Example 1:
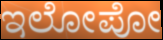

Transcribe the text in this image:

ಇಲೋಪೋ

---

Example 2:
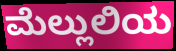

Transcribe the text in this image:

ಮೆಲ್ಲುಲಿಯ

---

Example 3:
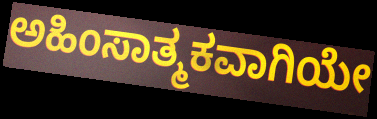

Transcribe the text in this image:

ಅಹಿಂಸಾತ್ಮಕವಾಗಿಯೇ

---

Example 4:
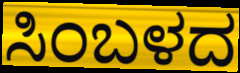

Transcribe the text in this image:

ಸಿಂಬಳದ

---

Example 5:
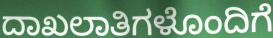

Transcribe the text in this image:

ದಾಖಲಾತಿಗಳೊಂದಿಗೆ